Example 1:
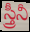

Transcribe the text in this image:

స్త్రీనీ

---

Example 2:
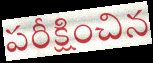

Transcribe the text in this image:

పరీక్షించిన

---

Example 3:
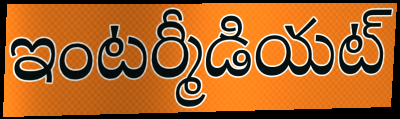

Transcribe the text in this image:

ఇంటర్మీడియట్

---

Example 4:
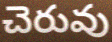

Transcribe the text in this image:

చెరువు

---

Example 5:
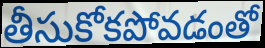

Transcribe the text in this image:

తీసుకోకపోవడంతో